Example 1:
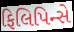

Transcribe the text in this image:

ફિલિપિન્સે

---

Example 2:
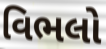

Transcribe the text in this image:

વિભલો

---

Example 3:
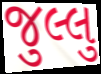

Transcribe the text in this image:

જુલ્લુ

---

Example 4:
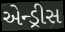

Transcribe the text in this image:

એન્ડ્રીસ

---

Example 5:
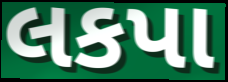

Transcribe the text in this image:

લકપા